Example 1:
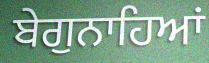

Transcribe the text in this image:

ਬੇਗੁਨਾਹਿਆਂ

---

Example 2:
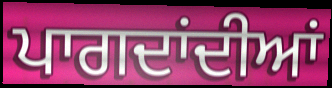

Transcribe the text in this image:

ਪਾਗਦਾਂਦੀਆਂ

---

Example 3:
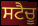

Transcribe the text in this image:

ਸਟੈਚੂ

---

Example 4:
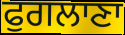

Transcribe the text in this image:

ਫੁਗਲਾਣਾ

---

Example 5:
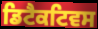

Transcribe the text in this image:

ਡਿਟੈਕਟਿਵਸ